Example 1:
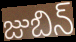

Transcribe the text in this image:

జుబిన్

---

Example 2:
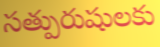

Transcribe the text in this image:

సత్పురుషులకు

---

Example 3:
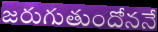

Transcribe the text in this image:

జరుగుతుందోననే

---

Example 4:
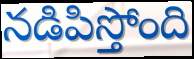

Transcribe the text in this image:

నడిపిస్తోంది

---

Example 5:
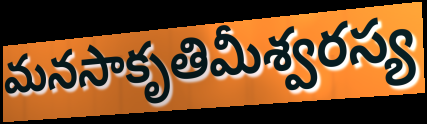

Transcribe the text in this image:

మనసాకృతిమీశ్వరస్య